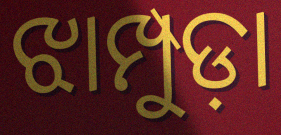
ଝାମ୍ପୁଡ଼ା